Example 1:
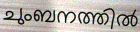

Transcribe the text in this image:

ചുംബനത്തിൽ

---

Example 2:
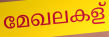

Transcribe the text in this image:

മേഖലകള്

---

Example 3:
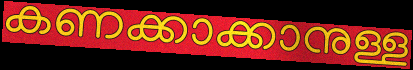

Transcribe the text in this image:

കണക്കാക്കാനുള്ള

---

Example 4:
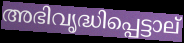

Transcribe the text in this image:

അഭിവൃദ്ധിപ്പെട്ടാല്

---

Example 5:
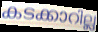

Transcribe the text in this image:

കടക്കാറില്ല